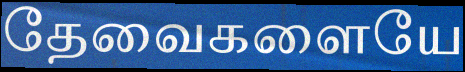
தேவைகளையே